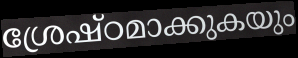
ശ്രേഷ്ഠമാക്കുകയും